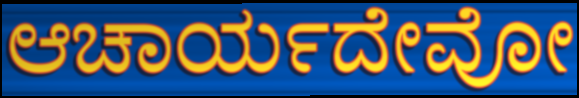
ಆಚಾರ್ಯದೇವೋ